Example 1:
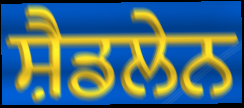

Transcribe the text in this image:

ਸ਼ੈਡਲੇਨ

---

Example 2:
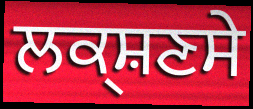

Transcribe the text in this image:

ਲਕ੍ਸ਼ਣਸੇ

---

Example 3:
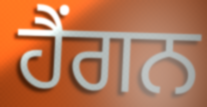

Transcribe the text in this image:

ਹੈਂਗਨ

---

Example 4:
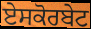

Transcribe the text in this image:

ਏਸਕੋਰਬੇਟ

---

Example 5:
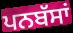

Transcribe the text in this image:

ਪਨਬੱਸਾਂ